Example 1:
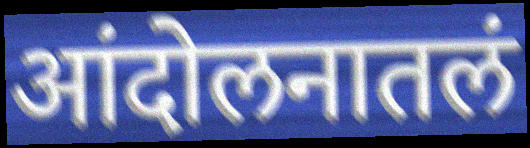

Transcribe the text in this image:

आंदोलनातलं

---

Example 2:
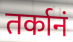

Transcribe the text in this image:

तर्कानं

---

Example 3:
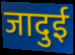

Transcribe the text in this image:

जादुई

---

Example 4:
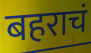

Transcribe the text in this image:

बहराचं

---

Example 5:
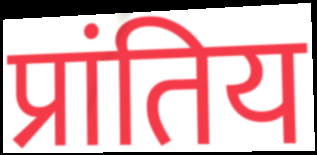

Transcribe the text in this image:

प्रांतिय